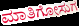
ಮಾತಿಗೋಸುಗ